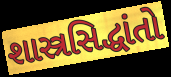
શાસ્ત્રસિદ્ધાંતો